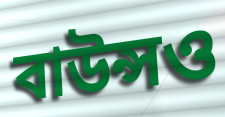
বাউন্সও